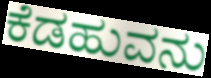
ಕೆಡಹುವನು